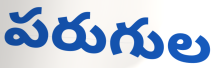
పరుగుల